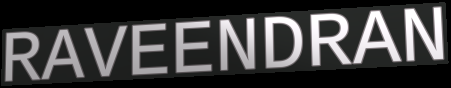
RAVEENDRAN